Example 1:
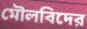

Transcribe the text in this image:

মৌলবিদের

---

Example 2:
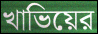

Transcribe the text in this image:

খাভিয়ের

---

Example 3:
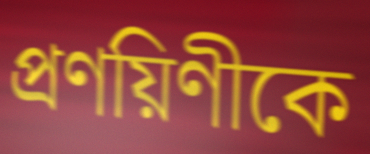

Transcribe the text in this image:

প্রণয়িণীকে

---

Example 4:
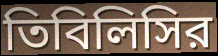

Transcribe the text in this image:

তিবিলিসির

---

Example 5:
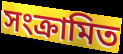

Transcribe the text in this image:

সংক্রামিত